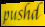
pushd